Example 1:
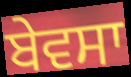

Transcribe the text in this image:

ਬੇਵਸਾ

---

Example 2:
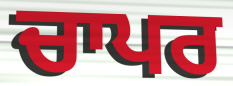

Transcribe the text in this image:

ਚਾਪਰ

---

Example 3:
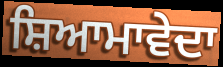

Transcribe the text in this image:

ਸ਼ਿਆਮਾਵੇਦਾ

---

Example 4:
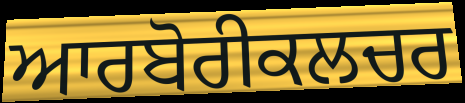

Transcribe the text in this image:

ਆਰਬੋਰੀਕਲਚਰ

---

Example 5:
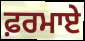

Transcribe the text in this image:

ਫ਼ਰਮਾਏ